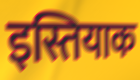
इस्तियाक